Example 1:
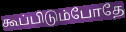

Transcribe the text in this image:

கூப்பிடும்போதே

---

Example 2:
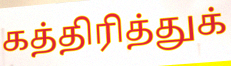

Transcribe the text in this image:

கத்திரித்துக்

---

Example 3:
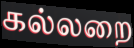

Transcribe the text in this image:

கல்லறை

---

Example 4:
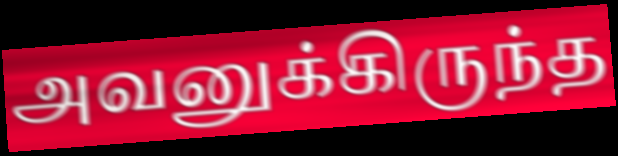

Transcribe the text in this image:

அவனுக்கிருந்த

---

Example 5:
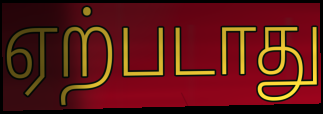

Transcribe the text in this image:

ஏற்படாது